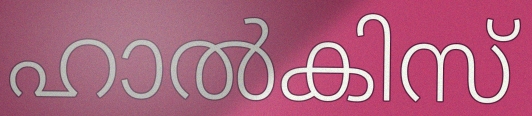
ഹാൽകിസ്